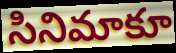
సినిమాకూ